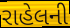
રાહેલની